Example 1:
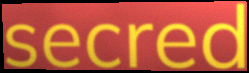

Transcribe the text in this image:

secred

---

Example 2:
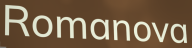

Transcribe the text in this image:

Romanova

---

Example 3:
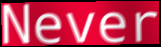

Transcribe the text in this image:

Never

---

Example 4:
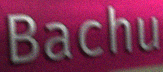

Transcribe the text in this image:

Bachu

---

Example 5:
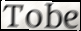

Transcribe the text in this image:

Tobe